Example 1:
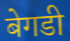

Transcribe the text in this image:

बेगडी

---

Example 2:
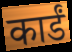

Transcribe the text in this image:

कार्डं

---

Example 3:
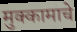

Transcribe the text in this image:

मुक्कामाचे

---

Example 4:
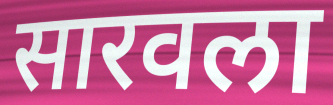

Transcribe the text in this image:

सारवला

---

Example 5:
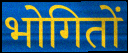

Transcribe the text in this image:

भोगितों